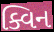
ક્વિન